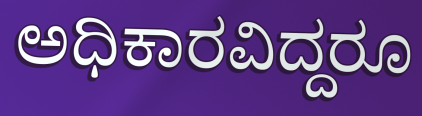
ಅಧಿಕಾರವಿದ್ದರೂ